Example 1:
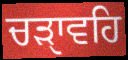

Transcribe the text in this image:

ਚੜੑਾਵਹਿ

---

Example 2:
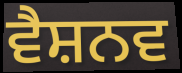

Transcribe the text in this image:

ਵੈਸ਼ਨਵ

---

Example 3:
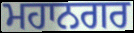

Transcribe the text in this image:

ਮਹਾਨਗਰ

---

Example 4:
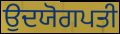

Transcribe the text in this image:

ਉਦਯੋਗਪਤੀ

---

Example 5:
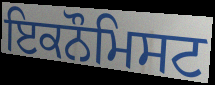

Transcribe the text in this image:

ਇਕਨੌਮਿਸਟ